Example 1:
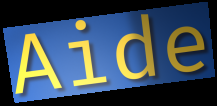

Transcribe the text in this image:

Aide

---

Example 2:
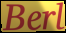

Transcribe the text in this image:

Berl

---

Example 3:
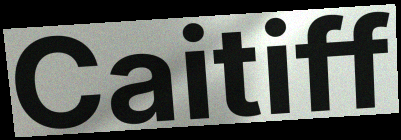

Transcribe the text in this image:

Caitiff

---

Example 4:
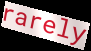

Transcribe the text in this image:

rarely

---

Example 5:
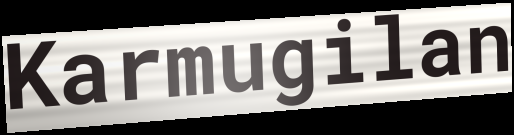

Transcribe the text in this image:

Karmugilan